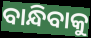
ବାନ୍ଧିବାକୁ